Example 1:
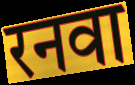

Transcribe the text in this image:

रनवा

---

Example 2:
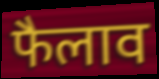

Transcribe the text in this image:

फैलाव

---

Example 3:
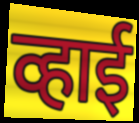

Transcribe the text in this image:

व्हाई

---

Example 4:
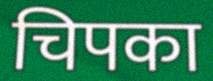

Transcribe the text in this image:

चिपका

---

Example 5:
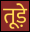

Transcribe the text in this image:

तूड़े